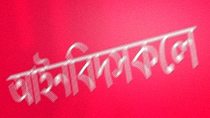
আইনবিদসকলে